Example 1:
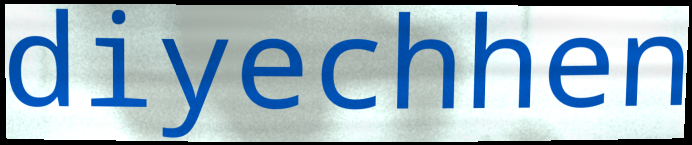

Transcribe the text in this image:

diyechhen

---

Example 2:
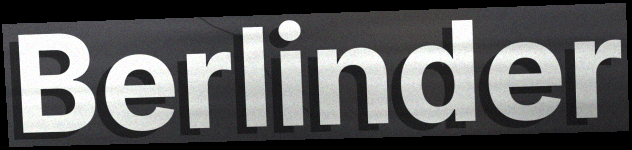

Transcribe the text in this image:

Berlinder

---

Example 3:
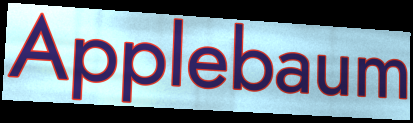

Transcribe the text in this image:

Applebaum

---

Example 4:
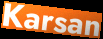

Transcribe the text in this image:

Karsan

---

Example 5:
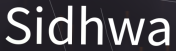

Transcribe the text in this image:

Sidhwa